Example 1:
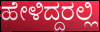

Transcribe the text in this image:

ಹೇಳಿದ್ದರಲ್ಲಿ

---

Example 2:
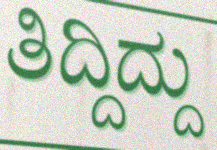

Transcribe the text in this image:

ತಿದ್ದಿದ್ದು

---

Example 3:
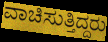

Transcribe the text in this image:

ವಾಚಿಸುತ್ತಿದ್ದರು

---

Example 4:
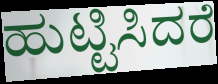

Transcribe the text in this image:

ಹುಟ್ಟಿಸಿದರೆ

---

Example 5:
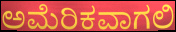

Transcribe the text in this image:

ಅಮೆರಿಕವಾಗಲಿ